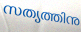
സത്യത്തിനു